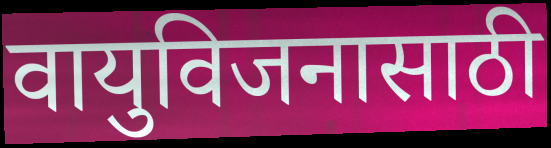
वायुविजनासाठी